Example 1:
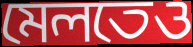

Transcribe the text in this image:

মেলতেও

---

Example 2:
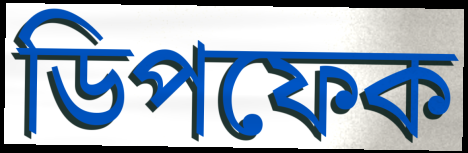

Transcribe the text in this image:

ডিপফেক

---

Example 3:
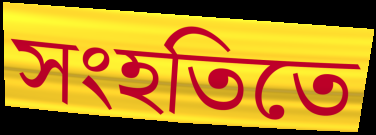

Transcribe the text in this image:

সংহতিতে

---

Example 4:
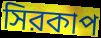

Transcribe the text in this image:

সিরকাপ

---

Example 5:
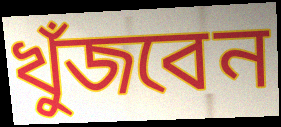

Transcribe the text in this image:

খুঁজবেন